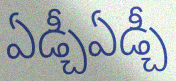
ఏడ్చీఏడ్చీ